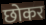
छोकर